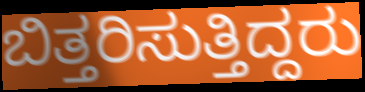
ಬಿತ್ತರಿಸುತ್ತಿದ್ದರು